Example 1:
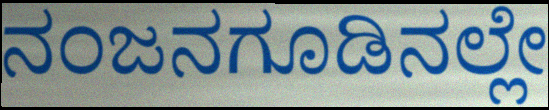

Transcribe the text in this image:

ನಂಜನಗೂಡಿನಲ್ಲೇ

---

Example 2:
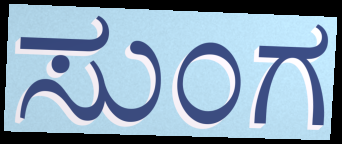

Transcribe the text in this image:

ಸುಂಗ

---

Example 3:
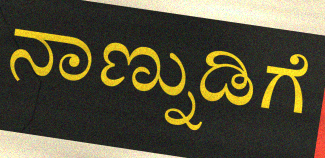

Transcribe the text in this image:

ನಾಣ್ನುಡಿಗೆ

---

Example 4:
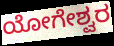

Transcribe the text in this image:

ಯೋಗೇಶ್ವರ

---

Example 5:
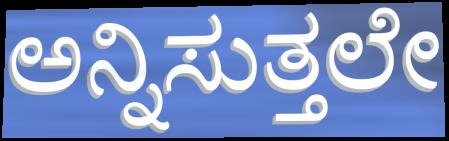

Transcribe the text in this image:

ಅನ್ನಿಸುತ್ತಲೇ